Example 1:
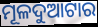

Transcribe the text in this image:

ମୂଳଦୁଆଟାର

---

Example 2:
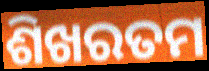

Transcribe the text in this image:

ଶିଖରତମ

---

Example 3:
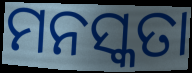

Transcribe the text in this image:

ମନସ୍କତା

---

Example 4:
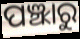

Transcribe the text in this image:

ପଞ୍ଝାରୁ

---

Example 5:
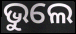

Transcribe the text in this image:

ଭୁଲେ